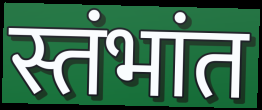
स्तंभांत